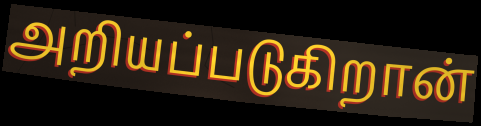
அறியப்படுகிறான்